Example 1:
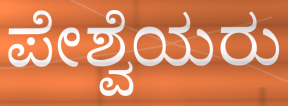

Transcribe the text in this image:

ಪೇಶ್ವೆಯರು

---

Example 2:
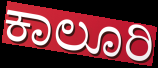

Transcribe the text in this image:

ಕಾಲೂರಿ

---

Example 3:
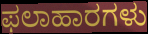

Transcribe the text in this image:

ಫಲಾಹಾರಗಳು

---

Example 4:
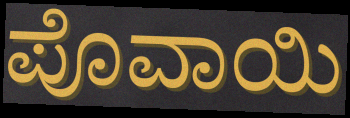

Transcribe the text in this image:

ಪೊವಾಯಿ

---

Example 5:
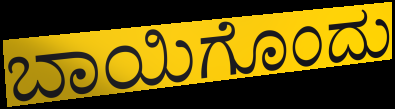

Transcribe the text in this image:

ಬಾಯಿಗೊಂದು